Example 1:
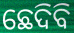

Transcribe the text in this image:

ଛେଦିବି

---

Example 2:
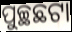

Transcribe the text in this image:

ପୁଚ୍ଛଛଟା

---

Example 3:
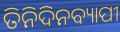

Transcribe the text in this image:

ତିନିଦିନବ୍ୟାପୀ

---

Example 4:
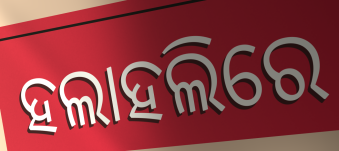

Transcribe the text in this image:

ହଲାହଲିରେ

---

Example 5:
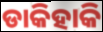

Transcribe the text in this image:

ଡାକିହାକି